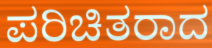
ಪರಿಚಿತರಾದ